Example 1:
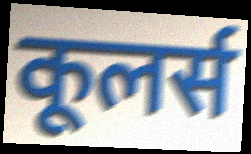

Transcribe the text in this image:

कूलर्स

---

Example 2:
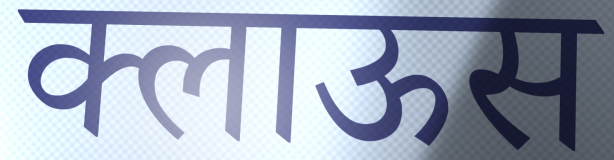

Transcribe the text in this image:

क्लाऊस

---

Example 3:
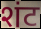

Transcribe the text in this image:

शंट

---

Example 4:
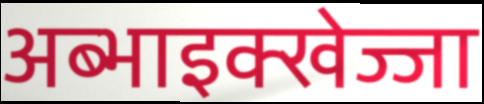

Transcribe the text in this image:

अब्भाइक्खेज्जा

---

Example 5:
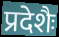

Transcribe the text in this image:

प्रदेशैः